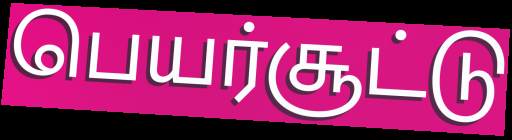
பெயர்சூட்டு